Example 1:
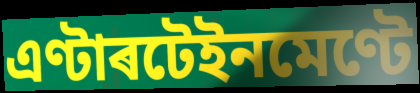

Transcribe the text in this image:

এণ্টাৰটেইনমেণ্টে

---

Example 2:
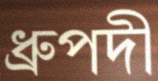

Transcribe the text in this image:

ধ্ৰুপদী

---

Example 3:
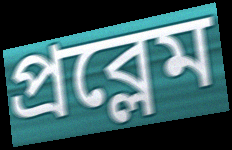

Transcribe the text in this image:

প্ৰব্লেম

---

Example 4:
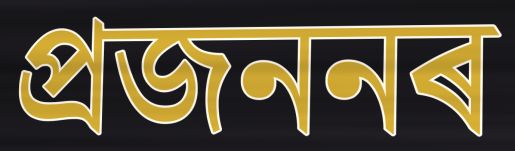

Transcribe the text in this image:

প্ৰজননৰ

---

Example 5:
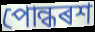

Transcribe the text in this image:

পোন্ধৰশ